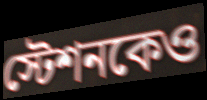
স্টেশনকেও